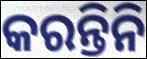
କରନ୍ତିନି